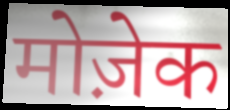
मोज़ेक